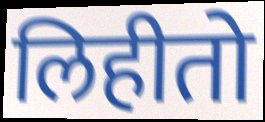
लिहीतो